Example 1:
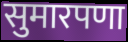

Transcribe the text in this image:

सुमारपणा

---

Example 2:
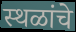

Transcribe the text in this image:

स्थळांचे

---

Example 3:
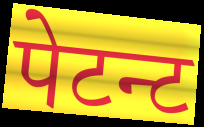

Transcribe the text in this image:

पेटन्ट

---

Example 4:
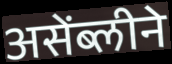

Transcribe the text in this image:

असेंब्लीने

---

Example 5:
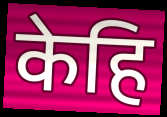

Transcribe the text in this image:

केहि